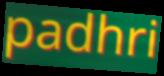
padhri